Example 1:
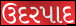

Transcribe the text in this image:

ઉદરપાદ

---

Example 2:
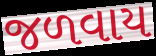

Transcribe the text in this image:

જળવાય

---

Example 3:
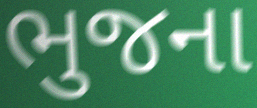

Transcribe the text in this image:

ભુજના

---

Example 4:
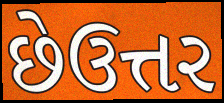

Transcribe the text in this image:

છેઉત્તર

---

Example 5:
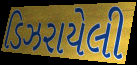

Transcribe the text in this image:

ડિઝરાયેલી